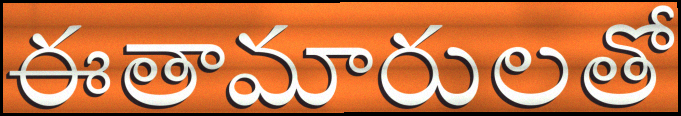
ఈతామారులతో